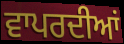
ਵਾਪਰਦੀਆਂ